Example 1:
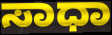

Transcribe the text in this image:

ಸಾಧಾ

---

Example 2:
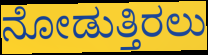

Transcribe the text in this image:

ನೋಡುತ್ತಿರಲು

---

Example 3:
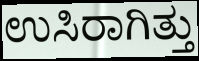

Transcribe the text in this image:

ಉಸಿರಾಗಿತ್ತು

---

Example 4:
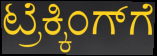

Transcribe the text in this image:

ಟ್ರೆಕ್ಕಿಂಗ್‌ಗೆ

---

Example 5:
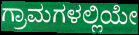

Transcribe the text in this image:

ಗ್ರಾಮಗಳಲ್ಲಿಯೇ